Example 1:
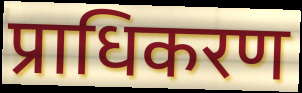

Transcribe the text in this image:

प्राधिकरण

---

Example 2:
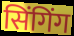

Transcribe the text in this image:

सिंगिंग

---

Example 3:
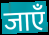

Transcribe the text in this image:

जाएँ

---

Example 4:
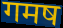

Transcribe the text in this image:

गमष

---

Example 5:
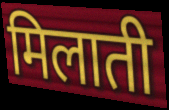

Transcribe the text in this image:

मिलाती